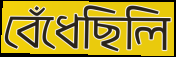
বেঁধেছিলি